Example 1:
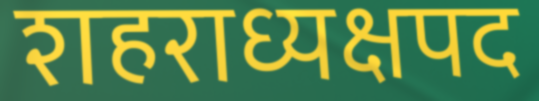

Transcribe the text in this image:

शहराध्यक्षपद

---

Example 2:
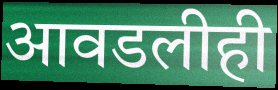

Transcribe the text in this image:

आवडलीही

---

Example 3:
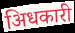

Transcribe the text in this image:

अिधकारी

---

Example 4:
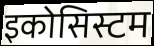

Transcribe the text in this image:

इकोसिस्टम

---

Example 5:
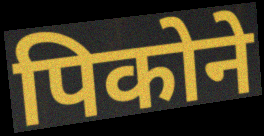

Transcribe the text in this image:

पिकोने